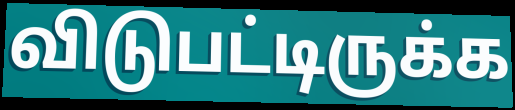
விடுபட்டிருக்க